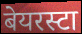
बेयरस्टा